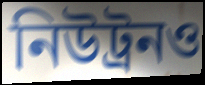
নিউট্রনও